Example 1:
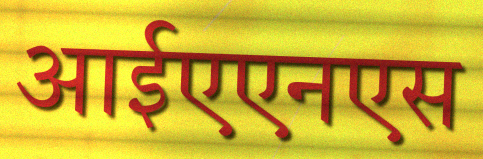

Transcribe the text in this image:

आईएएनएस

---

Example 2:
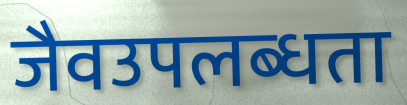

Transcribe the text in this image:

जैवउपलब्धता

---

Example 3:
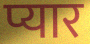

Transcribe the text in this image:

प्यार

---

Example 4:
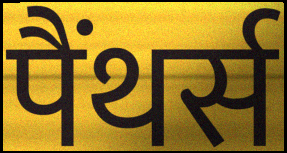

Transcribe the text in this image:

पैंथर्स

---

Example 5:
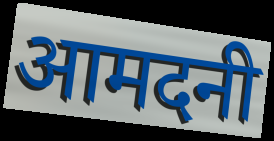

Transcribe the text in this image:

आमदनी